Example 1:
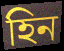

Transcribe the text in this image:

হিন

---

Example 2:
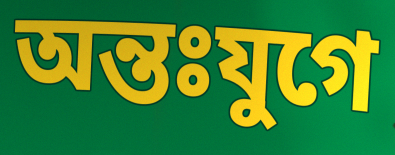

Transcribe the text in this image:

অন্তঃযুগে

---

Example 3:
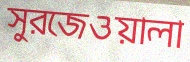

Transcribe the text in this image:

সুরজেওয়ালা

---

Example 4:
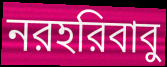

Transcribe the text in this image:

নরহরিবাবু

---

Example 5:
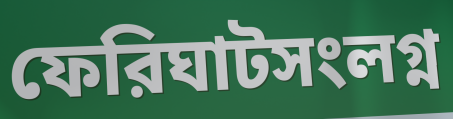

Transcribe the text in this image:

ফেরিঘাটসংলগ্ন